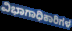
ವಿಭಾಗಾಧಿಕಾರಿಗಳ